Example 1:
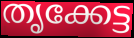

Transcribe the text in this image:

തൃക്കേട്ട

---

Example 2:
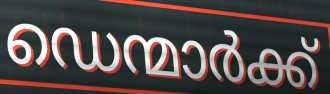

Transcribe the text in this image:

ഡെന്മാർക്ക്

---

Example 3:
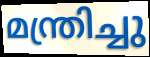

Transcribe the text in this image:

മന്ത്രിച്ചു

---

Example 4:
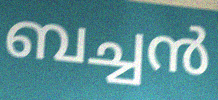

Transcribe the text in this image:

ബച്ചൻ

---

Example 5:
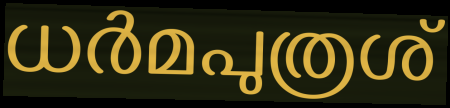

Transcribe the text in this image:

ധർമപുത്രശ്